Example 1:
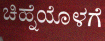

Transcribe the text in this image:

ಚಿಹ್ನೆಯೊಳಗೆ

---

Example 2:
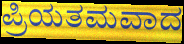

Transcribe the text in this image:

ಪ್ರಿಯತಮವಾದ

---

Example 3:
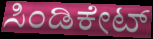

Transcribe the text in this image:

ಸಿಂಡಿಕೇಟ್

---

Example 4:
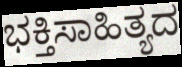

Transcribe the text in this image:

ಭಕ್ತಿಸಾಹಿತ್ಯದ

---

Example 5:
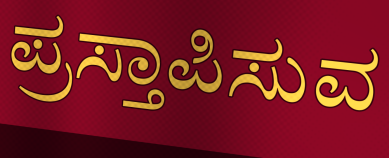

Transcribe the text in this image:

ಪ್ರಸ್ತಾಪಿಸುವ